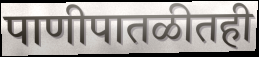
पाणीपातळीतही